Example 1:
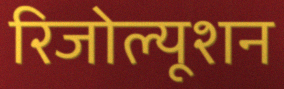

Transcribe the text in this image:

रिजोल्यूशन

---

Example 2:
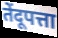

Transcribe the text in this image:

तेंदूपत्ता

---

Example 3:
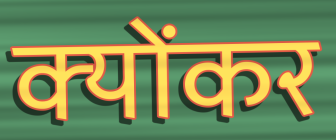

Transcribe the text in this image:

क्‍योंकर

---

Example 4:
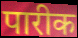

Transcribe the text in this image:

पारीक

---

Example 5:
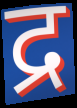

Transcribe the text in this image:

द्र